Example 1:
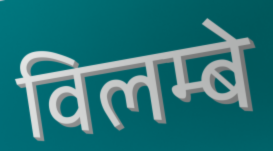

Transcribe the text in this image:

विलम्बे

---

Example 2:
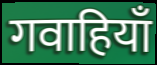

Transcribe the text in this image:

गवाहियाँ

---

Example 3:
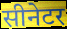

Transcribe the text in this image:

सीनेटर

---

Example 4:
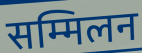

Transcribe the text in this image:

सम्मिलन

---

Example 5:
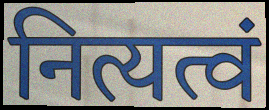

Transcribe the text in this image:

नित्यत्वं